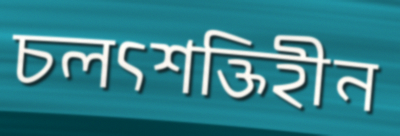
চলৎশক্তিহীন